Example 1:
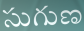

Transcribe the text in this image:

సుగుణ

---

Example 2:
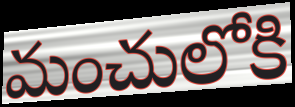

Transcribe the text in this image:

మంచులోకి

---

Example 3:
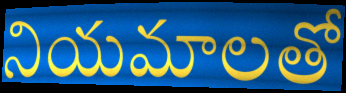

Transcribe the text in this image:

నియమాలతో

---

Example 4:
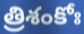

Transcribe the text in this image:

త్రిశంకోః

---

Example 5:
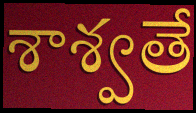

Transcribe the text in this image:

శాశ్వతే